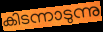
കിടന്നാടുന്നു